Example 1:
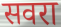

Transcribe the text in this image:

सवरा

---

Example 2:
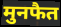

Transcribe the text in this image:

मुनफैत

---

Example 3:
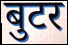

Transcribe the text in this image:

बुटर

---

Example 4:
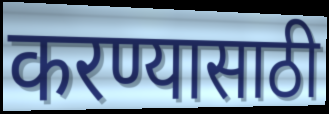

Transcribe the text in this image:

करण्यासाठी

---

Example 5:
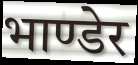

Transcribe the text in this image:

भाण्डेर